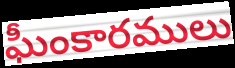
ఘీంకారములు